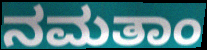
ನಮತಾಂ